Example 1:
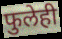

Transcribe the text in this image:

फुलेही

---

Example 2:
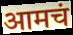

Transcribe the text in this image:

आमचं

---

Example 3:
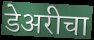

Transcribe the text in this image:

डेअरीचा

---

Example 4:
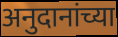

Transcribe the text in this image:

अनुदानांच्या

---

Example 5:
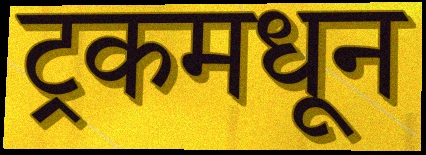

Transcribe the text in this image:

ट्रकमधून